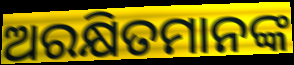
ଅରକ୍ଷିତମାନଙ୍କ